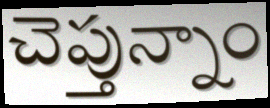
చెప్తున్నాం